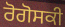
ਰੋਗੋਸਕੀ